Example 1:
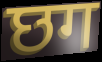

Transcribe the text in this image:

छग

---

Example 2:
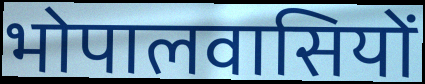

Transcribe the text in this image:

भोपालवासियों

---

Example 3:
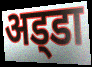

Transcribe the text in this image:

अड्‌डा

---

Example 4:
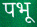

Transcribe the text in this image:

पभू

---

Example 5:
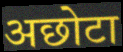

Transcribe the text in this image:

अछोटा